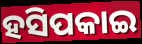
ହସିପକାଇ